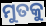
ମୁତକୁ